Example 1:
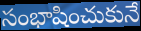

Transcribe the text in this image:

సంభాషించుకునే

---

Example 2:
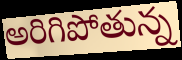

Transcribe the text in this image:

అరిగిపోతున్న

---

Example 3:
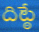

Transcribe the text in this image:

దిట్ఠే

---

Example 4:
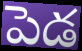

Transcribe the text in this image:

పెడ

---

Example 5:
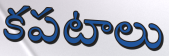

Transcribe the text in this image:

కపటాలు